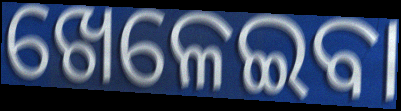
ଖେଳେଇବା